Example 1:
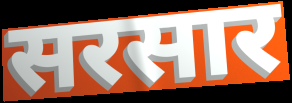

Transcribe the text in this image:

सरसार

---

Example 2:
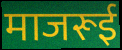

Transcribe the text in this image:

माजरूई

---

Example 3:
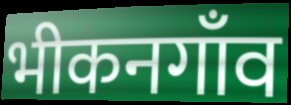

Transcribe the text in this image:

भीकनगाँव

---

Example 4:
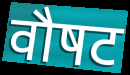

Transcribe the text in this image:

वौषट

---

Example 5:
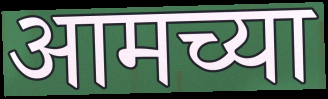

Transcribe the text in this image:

आमच्या